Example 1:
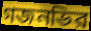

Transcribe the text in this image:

গজনভির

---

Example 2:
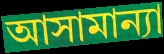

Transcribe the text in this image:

আসামান্যা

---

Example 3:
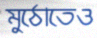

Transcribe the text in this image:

মুঠোতেও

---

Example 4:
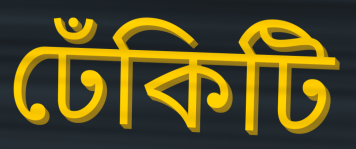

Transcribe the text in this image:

ঢেঁকিটি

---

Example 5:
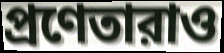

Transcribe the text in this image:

প্রণেতারাও